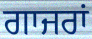
ਗਾਜਰਾਂ